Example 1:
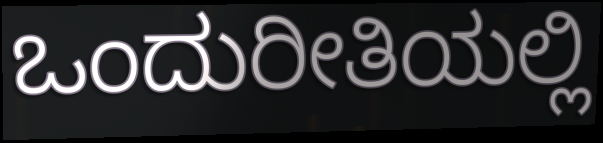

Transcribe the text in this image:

ಒಂದುರೀತಿಯಲ್ಲಿ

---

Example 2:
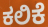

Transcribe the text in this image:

ಕಲಿಕೆ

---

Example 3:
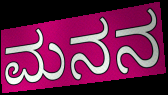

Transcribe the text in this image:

ಮನನ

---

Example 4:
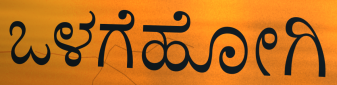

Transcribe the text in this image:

ಒಳಗೆಹೋಗಿ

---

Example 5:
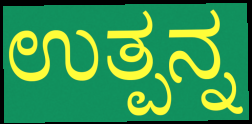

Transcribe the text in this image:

ಉತ್ಪನ್ನ